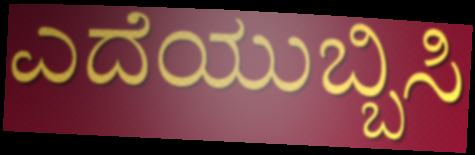
ಎದೆಯುಬ್ಬಿಸಿ